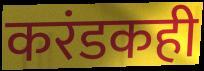
करंडकही